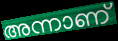
അന്നാണ്